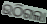
ଉଠିଗଲା